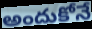
అందుకోనే